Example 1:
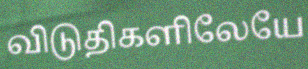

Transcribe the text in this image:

விடுதிகளிலேயே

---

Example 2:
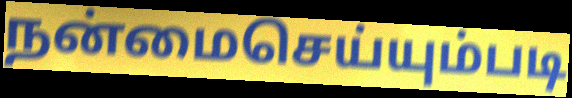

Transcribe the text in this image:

நன்மைசெய்யும்படி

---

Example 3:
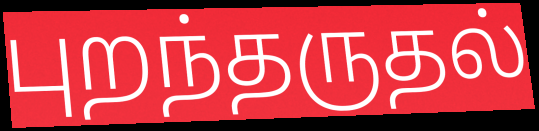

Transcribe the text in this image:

புறந்தருதல்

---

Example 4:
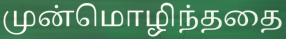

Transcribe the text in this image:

முன்மொழிந்ததை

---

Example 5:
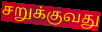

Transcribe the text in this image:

சறுக்குவது